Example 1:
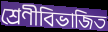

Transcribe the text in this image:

শ্রেণীবিভাজিত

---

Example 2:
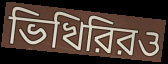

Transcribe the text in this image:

ভিখিরিরও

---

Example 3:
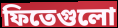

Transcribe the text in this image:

ফিতেগুলো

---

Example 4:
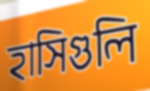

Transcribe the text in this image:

হাসিগুলি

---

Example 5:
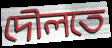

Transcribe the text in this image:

দৌলতে